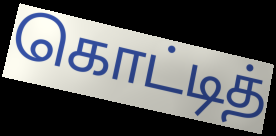
கொட்டித்